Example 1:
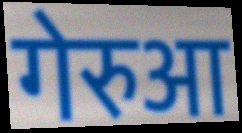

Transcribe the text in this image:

गेरुआ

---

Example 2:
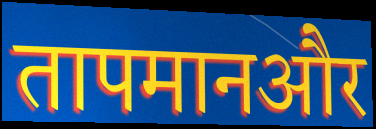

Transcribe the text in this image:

तापमानऔर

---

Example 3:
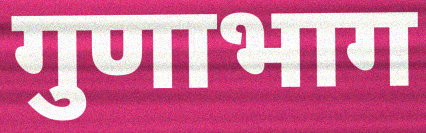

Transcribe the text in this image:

गुणाभाग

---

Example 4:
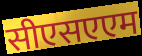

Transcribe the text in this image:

सीएसएएम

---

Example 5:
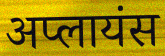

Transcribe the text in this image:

अप्लायंस